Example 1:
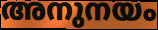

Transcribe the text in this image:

അനുനയം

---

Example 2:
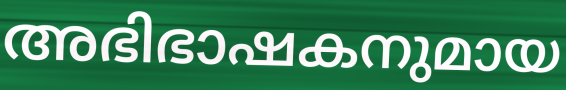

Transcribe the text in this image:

അഭിഭാഷകനുമായ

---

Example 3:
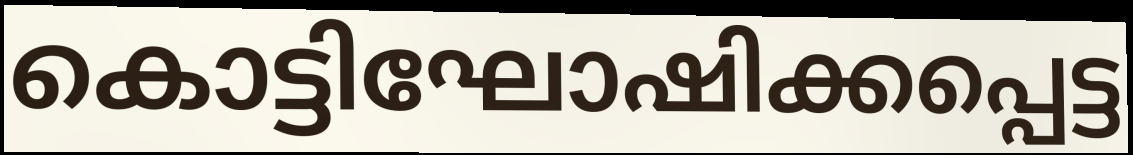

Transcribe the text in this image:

കൊട്ടിഘോഷിക്കപ്പെട്ട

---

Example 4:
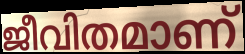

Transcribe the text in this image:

ജീവിതമാണ്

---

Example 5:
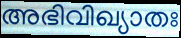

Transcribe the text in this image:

അഭിവിഖ്യാതഃ